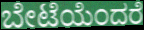
ಬೇಟೆಯೆಂದರೆ